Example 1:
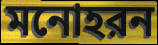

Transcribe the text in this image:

মনোহরন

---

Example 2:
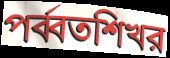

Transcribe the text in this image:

পর্ব্বতশিখর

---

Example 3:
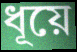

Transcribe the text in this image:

ধূয়ে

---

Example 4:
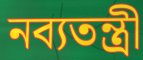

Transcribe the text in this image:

নব্যতন্ত্রী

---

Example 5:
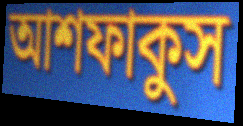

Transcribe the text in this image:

আশফাকুস